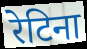
रेटिना